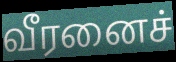
வீரனைச்